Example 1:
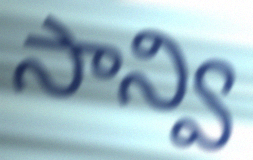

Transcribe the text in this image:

సాన్వి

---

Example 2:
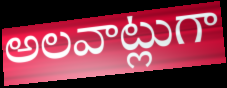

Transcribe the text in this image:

అలవాట్లుగా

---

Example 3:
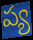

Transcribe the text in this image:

ప్య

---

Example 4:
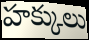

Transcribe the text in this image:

హక్కులు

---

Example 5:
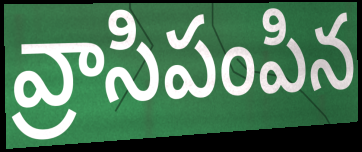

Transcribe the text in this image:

వ్రాసిపంపిన